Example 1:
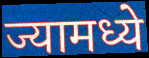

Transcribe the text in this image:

ज्यामध्ये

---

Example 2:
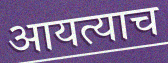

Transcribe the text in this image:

आयत्याच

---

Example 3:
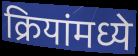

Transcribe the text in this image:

क्रियांमध्ये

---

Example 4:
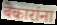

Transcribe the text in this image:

बेकारांना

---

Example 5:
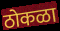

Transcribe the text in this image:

ठोकळा